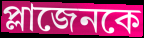
প্লাজেনকে